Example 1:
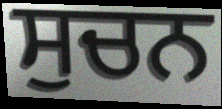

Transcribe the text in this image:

ਸੁਚਨ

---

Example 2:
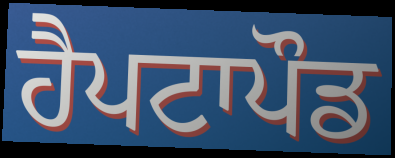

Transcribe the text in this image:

ਹੈਪਟਾਪੌਡ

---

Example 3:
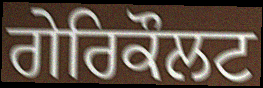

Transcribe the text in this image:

ਗੇਰਿਕੌਲਟ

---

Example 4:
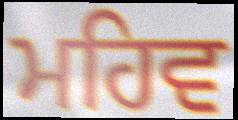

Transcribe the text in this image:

ਮਹਿਵ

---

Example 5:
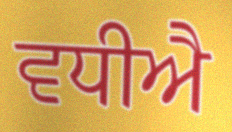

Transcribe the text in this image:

ਵਧੀਐ